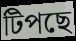
টিপছে